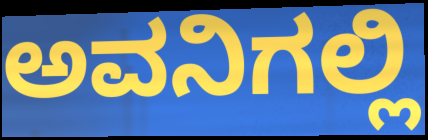
ಅವನಿಗಲ್ಲಿ